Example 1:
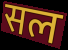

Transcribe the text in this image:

सल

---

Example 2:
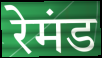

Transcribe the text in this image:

रेमंड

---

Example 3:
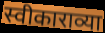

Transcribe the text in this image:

स्वीकाराव्या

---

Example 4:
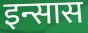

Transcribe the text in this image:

इन्सास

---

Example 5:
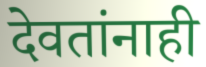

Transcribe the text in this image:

देवतांनाही